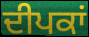
ਦੀਪਕਾਂ